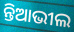
ନ୍ତିଆଭୀଲ